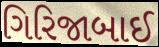
ગિરિજાબાઈ